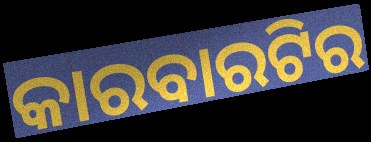
କାରବାରଟିର